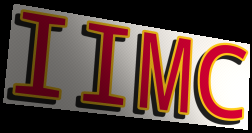
IIMC